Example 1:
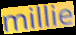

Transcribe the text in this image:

millie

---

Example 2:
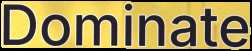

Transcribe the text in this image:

Dominate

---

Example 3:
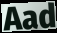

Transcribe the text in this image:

Aad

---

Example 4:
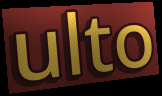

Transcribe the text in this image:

ulto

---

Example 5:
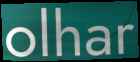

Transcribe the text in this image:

olhar